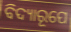
ବିଦ୍ୟାରୂପେ